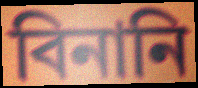
বিনানি